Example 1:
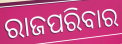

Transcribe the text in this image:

ରାଜପରିବାର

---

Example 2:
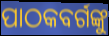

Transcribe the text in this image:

ପାଠକବର୍ଗଙ୍କୁ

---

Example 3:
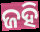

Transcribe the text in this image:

ଜହି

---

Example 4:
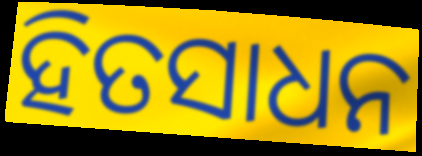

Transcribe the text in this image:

ହିତସାଧନ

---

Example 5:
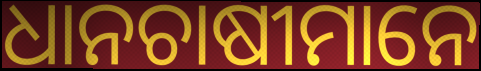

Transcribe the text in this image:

ଧାନଚାଷୀମାନେ